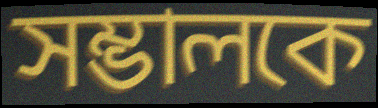
সম্ভালকে